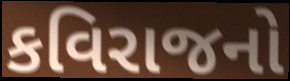
કવિરાજનો